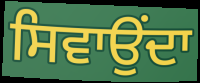
ਸਿਵਾਉਂਦਾ